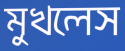
মুখলেস